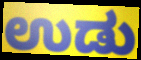
ಉಡು